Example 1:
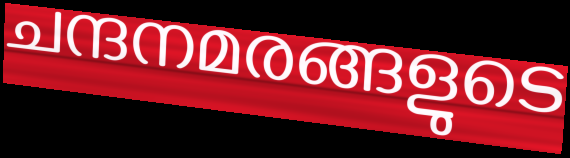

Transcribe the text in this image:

ചന്ദനമരങ്ങളുടെ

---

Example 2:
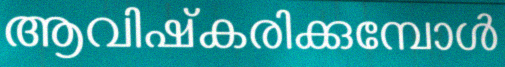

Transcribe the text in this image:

ആവിഷ്‌കരിക്കുമ്പോൾ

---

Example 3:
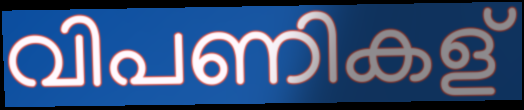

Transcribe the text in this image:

വിപണികള്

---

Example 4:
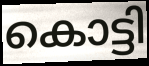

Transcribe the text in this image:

കൊട്ടി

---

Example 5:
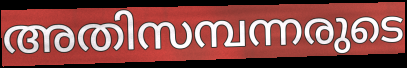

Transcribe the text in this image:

അതിസമ്പന്നരുടെ